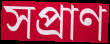
সপ্রাণ